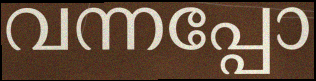
വന്നപ്പോ